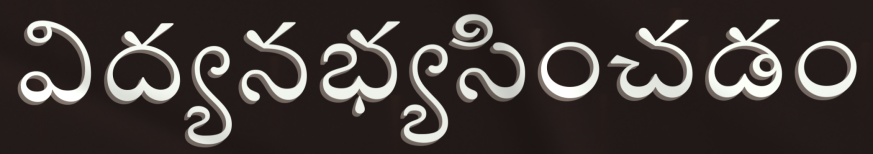
విద్యనభ్యసించడం